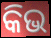
କିଭ